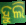
ହୁଲି